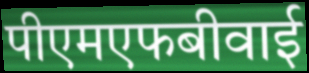
पीएमएफबीवाई